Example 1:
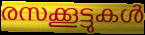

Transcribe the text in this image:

രസക്കൂട്ടുകൾ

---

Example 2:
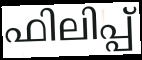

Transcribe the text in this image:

ഫിലിപ്പ്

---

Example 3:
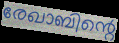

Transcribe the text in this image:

രേഖാബിന്റെ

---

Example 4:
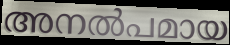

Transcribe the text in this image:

അനൽപമായ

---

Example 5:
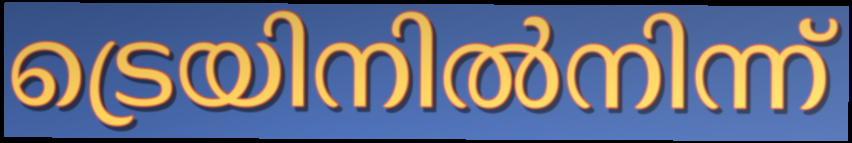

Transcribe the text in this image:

ട്രെയിനിൽനിന്ന്